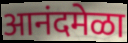
आनंदमेळा